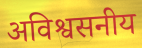
अविश्वसनीय